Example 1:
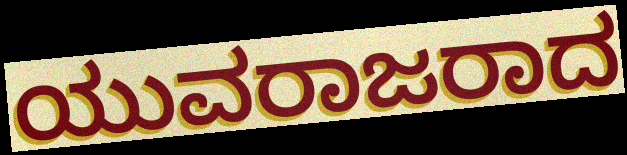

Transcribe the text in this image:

ಯುವರಾಜರಾದ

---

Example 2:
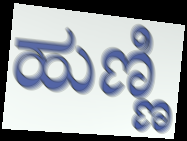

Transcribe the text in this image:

ಹುಣ್ಣಿ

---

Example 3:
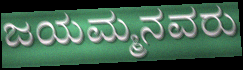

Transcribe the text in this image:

ಜಯಮ್ಮನವರು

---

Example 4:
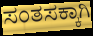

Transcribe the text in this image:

ಸಂತಸಕ್ಕಾಗಿ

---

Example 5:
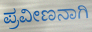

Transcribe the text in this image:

ಪ್ರವೀಣನಾಗಿ